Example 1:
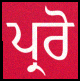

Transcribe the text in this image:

ਪ੍ਰਰੋ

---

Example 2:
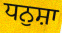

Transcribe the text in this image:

ਧਨੁਸ਼ਾ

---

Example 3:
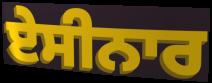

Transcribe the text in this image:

ਏਸੀਨਾਰ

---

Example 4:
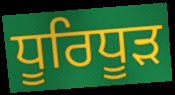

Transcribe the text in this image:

ਧੂਰਿਧੂੜ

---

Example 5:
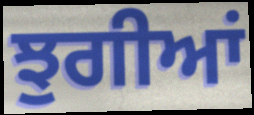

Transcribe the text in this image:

ਝੁਗੀਆਂ